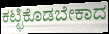
ಕಟ್ಟಿಕೊಡಬೇಕಾದ